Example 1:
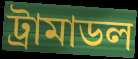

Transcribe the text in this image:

ট্রামাডল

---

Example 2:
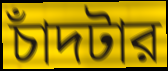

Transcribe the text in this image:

চাঁদটার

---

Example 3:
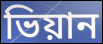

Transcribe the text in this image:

ভিয়ান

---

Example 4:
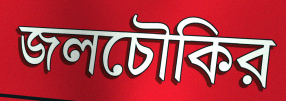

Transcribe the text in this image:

জলচৌকির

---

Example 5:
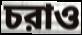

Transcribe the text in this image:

চরাও